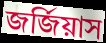
জর্জিয়াস